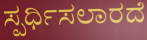
ಸ್ಪರ್ಧಿಸಲಾರದೆ